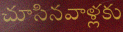
చూసినవాళ్లకు